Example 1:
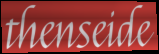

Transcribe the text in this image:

thenseide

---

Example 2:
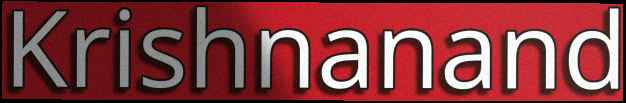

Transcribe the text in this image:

Krishnanand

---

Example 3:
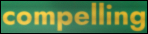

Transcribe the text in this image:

compelling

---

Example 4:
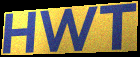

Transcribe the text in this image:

HWT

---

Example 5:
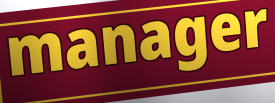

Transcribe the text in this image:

manager